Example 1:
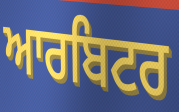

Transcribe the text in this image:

ਆਰਬਿਟਰ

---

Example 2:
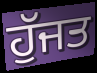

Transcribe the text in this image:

ਹੁੱਜਤ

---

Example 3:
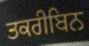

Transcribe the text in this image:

ਤਕਰੀਬਿਨ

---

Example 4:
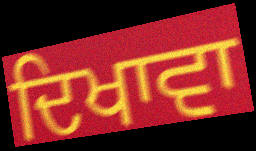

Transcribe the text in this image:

ਦਿਖਾਵਾ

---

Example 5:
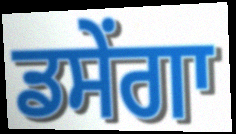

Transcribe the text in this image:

ਡਸੇਂਗਾ